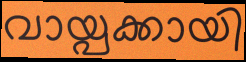
വായ്പക്കായി